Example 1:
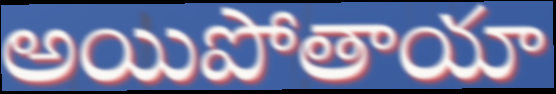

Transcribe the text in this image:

అయిపోతాయా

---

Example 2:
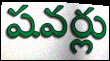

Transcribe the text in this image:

షవర్లు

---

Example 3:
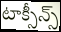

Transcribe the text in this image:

టాక్సీన్స్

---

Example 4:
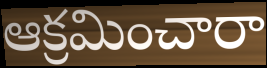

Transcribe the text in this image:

ఆక్రమించారా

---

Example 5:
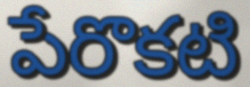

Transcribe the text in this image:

పేరొకటి